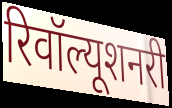
रिवॉल्यूशनरी